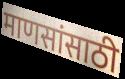
माणसांसाठी